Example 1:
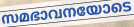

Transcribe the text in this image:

സമഭാവനയോടെ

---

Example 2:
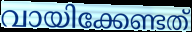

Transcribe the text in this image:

വായിക്കേണ്ടത്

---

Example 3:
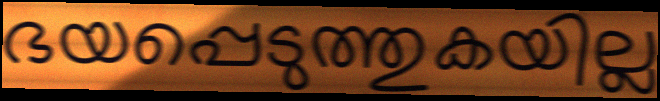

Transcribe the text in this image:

ഭയപ്പെടുത്തുകയില്ല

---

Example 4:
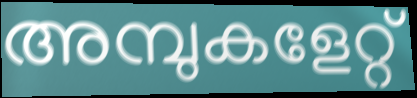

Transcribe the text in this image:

അമ്പുകളേറ്റ്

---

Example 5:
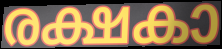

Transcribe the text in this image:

രക്ഷകാ